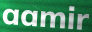
aamir